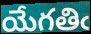
యేగతిఁ